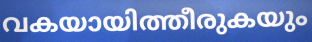
വകയായിത്തീരുകയും